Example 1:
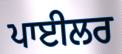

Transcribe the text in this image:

ਪਾਈਲਰ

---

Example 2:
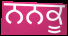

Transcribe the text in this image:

ਨਨਕੂ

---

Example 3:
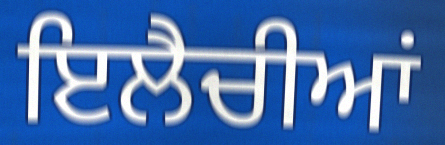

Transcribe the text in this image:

ਇਲੈਚੀਆਂ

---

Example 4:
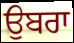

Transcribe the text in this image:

ਉਬਰਾ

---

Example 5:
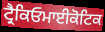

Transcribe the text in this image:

ਟ੍ਰੈਕਿਓਮਾਈਕੋਟਿਕ